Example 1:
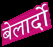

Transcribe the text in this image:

बेलार्दो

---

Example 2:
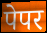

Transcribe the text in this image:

पेपर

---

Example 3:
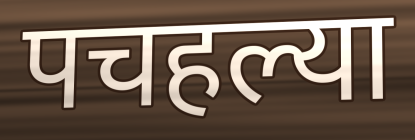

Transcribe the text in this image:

पचहल्या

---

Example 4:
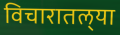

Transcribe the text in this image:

विचारातल्या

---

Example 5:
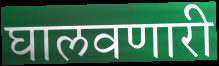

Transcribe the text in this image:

घालवणारी